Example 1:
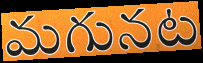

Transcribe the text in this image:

మగునట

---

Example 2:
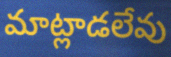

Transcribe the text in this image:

మాట్లాడలేవు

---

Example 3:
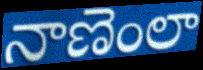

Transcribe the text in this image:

నాణెంలా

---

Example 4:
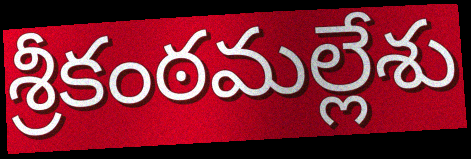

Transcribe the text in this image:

శ్రీకంఠమల్లేశు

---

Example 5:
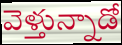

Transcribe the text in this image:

వెళ్తున్నాడో